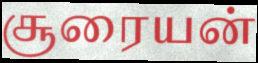
சூரையன்